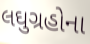
લઘુગ્રહોના